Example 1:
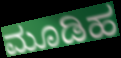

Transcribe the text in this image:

ಮೂಡಿಹ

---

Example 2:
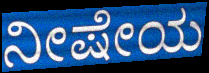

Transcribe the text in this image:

ನೀಷೇಯ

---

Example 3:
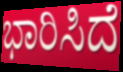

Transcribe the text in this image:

ಭಾರಿಸಿದೆ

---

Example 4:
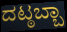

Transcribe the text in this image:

ದಟ್ಠಬ್ಬಾ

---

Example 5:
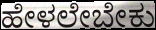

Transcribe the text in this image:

ಹೇಳಲೇಬೇಕು